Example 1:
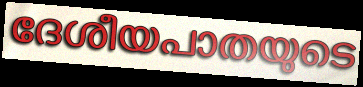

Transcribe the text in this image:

ദേശീയപാതയുടെ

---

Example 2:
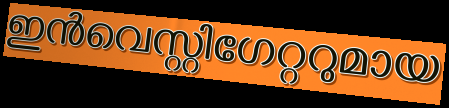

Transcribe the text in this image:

ഇൻവെസ്റ്റിഗേറ്ററുമായ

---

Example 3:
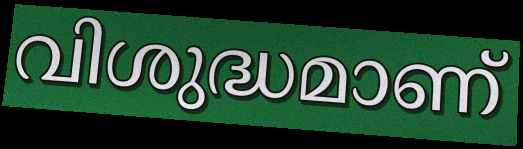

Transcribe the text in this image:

വിശുദ്ധമാണ്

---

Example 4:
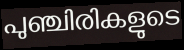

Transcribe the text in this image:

പുഞ്ചിരികളുടെ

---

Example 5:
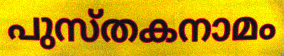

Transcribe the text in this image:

പുസ്തകനാമം